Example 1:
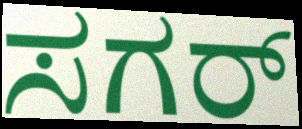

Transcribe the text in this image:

ಸಗರ್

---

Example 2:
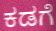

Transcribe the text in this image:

ಕಡಗೆ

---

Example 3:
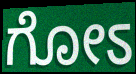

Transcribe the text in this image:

ಗೋಽ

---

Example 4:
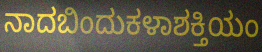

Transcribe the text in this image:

ನಾದಬಿಂದುಕಳಾಶಕ್ತಿಯಂ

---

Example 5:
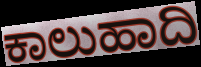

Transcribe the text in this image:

ಕಾಲುಹಾದಿ